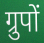
ग्रुपों